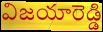
విజయారెడ్డి